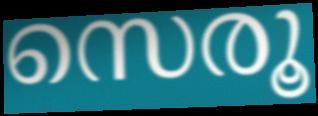
സെരൂ